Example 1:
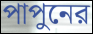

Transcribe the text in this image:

পাপুনের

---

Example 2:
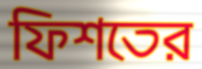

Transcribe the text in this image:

ফিশতের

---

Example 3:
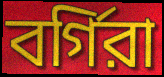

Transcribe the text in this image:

বর্গিরা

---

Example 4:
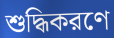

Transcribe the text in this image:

শুদ্ধিকরণে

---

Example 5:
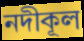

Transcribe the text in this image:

নদীকূল